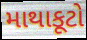
માથાકૂટો